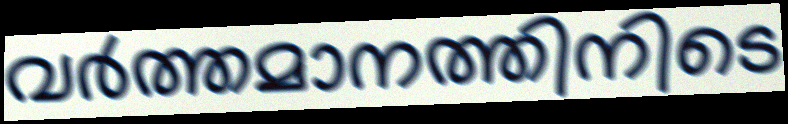
വർത്തമാനത്തിനിടെ